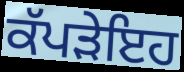
ਕੱਪੜੇਇਹ